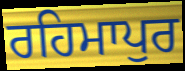
ਰਹਿਮਾਪੁਰ